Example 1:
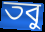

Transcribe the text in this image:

তবু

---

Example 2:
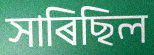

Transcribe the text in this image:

সাৰিছিল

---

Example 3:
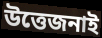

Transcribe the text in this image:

উত্তেজনাই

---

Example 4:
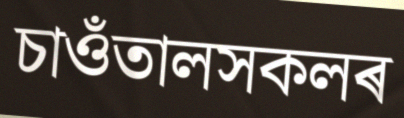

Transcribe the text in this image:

চাওঁতালসকলৰ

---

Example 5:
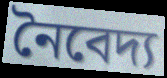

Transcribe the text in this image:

নৈবেদ্য